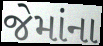
જેમાંના